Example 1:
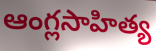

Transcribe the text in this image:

ఆంగ్లసాహిత్య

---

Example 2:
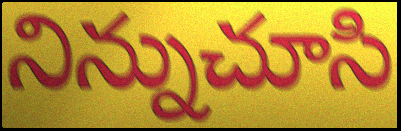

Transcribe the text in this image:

నిన్నుచూసి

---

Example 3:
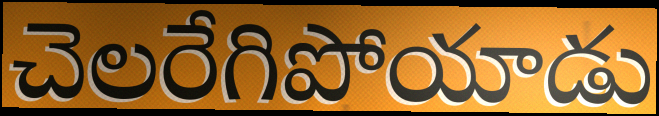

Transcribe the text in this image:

చెలరేగిపోయాడు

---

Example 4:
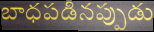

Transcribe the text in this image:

బాధపడినప్పుడు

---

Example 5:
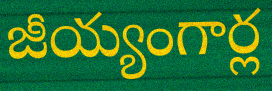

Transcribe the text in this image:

జీయ్యంగార్ల